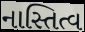
નાસ્તિત્વ